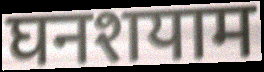
घनशयाम